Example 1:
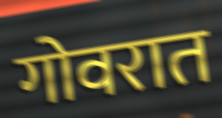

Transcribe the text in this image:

गोवरात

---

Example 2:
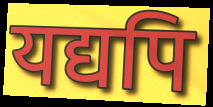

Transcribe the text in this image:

यद्यपि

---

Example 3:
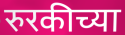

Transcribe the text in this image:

रुरकीच्या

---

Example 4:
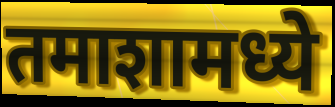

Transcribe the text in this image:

तमाशामध्ये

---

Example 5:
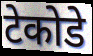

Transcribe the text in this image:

टेकोडे